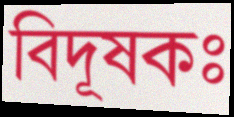
বিদূষকঃ